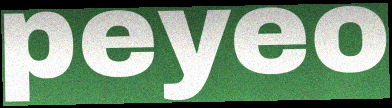
peyeo